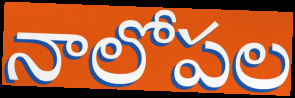
నాలోపల